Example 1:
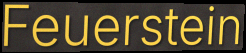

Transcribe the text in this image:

Feuerstein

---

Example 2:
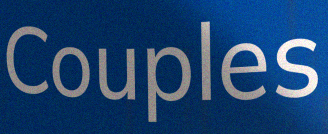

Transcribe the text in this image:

Couples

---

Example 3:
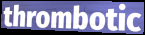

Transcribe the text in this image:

thrombotic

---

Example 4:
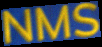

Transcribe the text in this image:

NMS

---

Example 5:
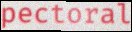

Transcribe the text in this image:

pectoral